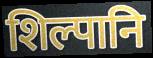
शिल्पानि